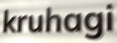
kruhagi